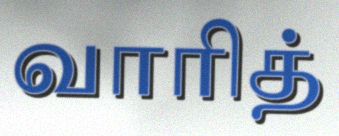
வாரித்